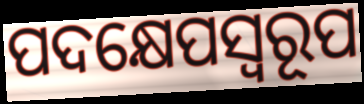
ପଦକ୍ଷେପସ୍ୱରୂପ